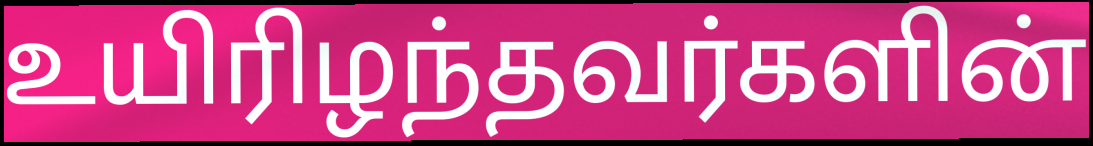
உயிரிழந்தவர்களின்